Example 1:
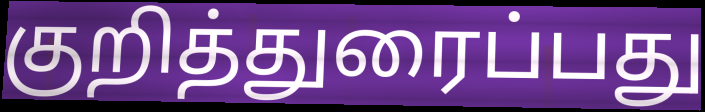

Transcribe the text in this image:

குறித்துரைப்பது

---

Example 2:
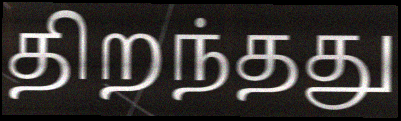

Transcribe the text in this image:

திறந்தது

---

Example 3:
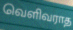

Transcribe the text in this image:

வெளிவராத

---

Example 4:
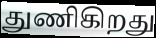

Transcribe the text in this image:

துணிகிறது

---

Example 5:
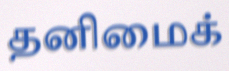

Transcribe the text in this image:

தனிமைக்